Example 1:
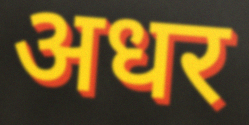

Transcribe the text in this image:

अधर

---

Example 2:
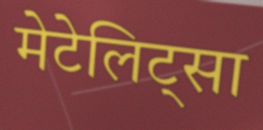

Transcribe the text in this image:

मेटेलिट्सा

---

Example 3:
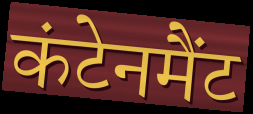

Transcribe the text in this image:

कंटेनमैंट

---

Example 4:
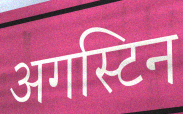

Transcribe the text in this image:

अगस्टिन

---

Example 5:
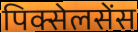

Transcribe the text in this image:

पिक्सेलसेंस